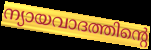
ന്യായവാദത്തിന്റെ